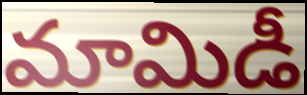
మామిడీ